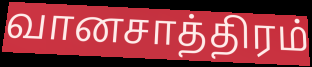
வானசாத்திரம்